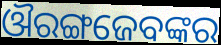
ଔରଙ୍ଗଜେବଙ୍କର